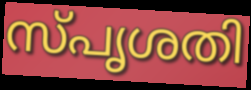
സ്പൃശതി